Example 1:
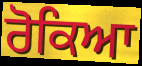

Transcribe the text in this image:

ਰੋਕਿਆ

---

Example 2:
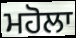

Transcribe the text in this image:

ਮਹੋਲਾ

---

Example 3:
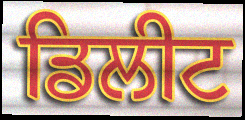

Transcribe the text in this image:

ਡਿਲੀਟ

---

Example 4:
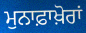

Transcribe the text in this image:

ਮੁਨਾਫ਼ਾਖ਼ੋਰਾਂ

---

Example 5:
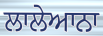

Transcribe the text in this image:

ਲਾਲੇਆਨਾ